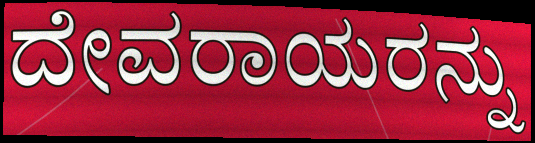
ದೇವರಾಯರನ್ನು